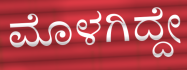
ಮೊಳಗಿದ್ದೇ